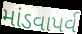
માંડવાપર્વ